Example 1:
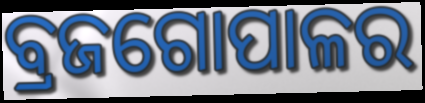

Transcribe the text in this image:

ବ୍ରଜଗୋପାଳର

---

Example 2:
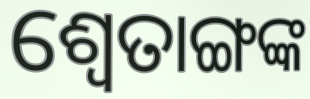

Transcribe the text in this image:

ଶ୍ବେତାଙ୍ଗଙ୍କ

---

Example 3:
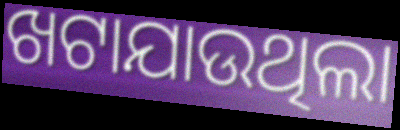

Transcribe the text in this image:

ଖଟାଯାଉଥିଲା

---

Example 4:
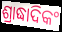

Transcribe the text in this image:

ଶ୍ରାଦ୍ଧାଦିକଂ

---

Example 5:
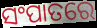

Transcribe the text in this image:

ସଂପାତରେ